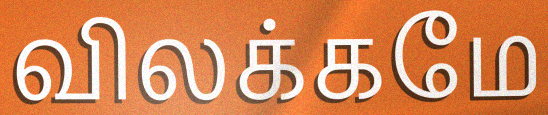
விலக்கமே